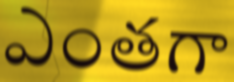
ఎంతగా